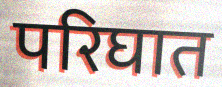
परिघात